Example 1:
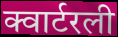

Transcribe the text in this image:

क्वार्टरली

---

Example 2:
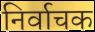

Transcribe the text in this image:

निर्वाचक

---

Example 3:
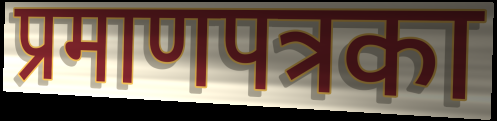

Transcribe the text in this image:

प्रमाणपत्रका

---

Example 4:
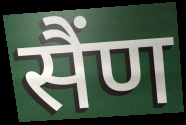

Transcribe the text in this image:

सैंण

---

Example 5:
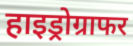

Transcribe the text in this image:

हाइड्रोग्राफर